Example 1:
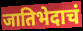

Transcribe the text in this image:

जातिभेदाचं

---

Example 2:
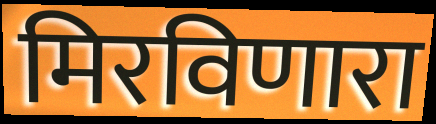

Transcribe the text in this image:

मिरविणारा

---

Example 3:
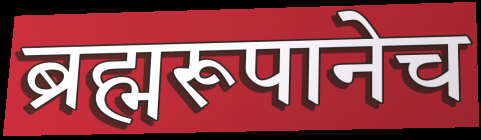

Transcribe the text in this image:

ब्रह्मरूपानेच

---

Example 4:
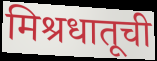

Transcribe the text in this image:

मिश्रधातूची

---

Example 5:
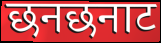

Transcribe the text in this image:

छनछनाट